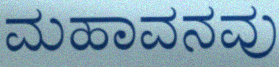
ಮಹಾವನವು